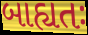
બાહ્યતઃ